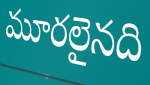
మూరలైనది